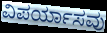
ವಿಪರ್ಯಾಸವು